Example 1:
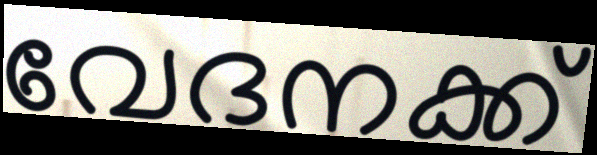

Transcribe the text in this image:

വേദനക്ക്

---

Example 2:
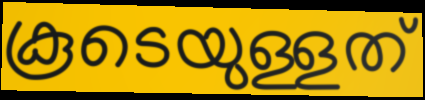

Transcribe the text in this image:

കൂടെയുള്ളത്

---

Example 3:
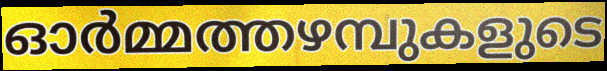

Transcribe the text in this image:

ഓർമ്മത്തഴമ്പുകളുടെ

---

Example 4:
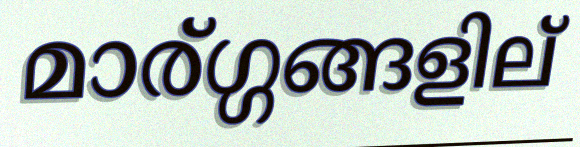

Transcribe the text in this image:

മാര്ഗ്ഗങ്ങളില്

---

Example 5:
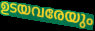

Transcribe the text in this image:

ഉടയവരേയും